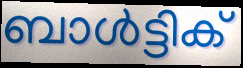
ബാൾട്ടിക്